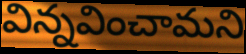
విన్నవించామని